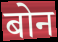
बोन